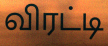
விரட்டி